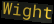
Wight